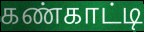
கண்காட்டி